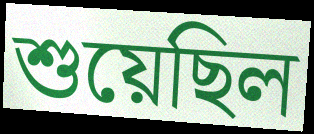
শুয়েছিল